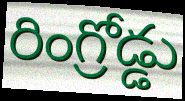
రింగ్రోడ్డు